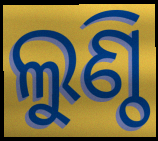
ଲୁଣ୍ଠି